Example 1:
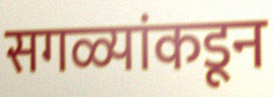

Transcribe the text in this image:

सगळ्यांकडून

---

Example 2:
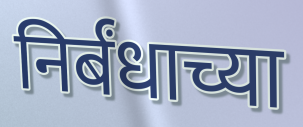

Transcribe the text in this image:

निर्बंधाच्या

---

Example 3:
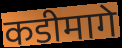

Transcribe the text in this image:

कडीमागे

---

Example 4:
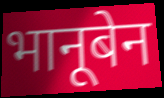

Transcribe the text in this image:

भानूबेन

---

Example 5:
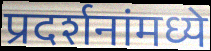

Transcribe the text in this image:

प्रदर्शनांमध्ये